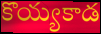
కొయ్యకాడ